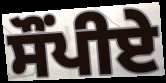
ਸੌਂਪੀਏ